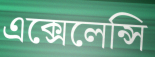
এক্সেলেন্সি